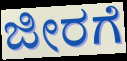
ಜೀರಗೆ